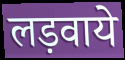
लड़वाये